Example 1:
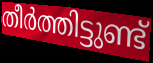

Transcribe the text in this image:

തീർത്തിട്ടുണ്ട്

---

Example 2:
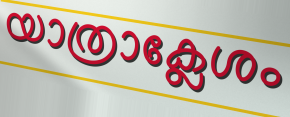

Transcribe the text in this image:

യാത്രാക്ലേശം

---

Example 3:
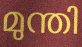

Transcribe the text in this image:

മുന്തി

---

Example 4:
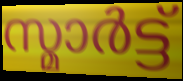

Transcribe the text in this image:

സ്മാർട്ട്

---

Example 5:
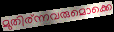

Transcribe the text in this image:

മുതിര്ന്നവരുമൊക്കെ